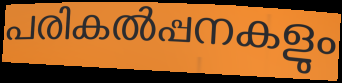
പരികൽപ്പനകളും